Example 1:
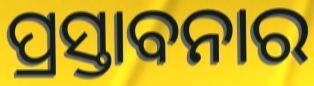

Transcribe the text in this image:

ପ୍ରସ୍ତାବନାର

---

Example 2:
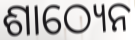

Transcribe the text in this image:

ଶାଠ୍ୟେନ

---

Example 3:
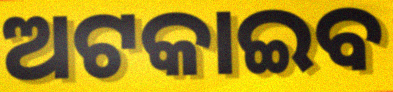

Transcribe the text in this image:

ଅଟକାଇବ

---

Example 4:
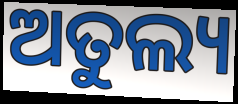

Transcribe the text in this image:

ଅତୁଲ୍ୟ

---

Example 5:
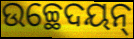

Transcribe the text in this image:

ଉଚ୍ଛେଦୟନ୍